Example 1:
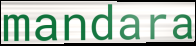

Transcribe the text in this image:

mandara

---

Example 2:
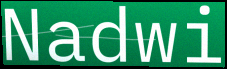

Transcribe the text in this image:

Nadwi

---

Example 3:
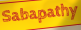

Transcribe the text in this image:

Sabapathy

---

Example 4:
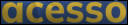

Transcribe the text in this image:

acesso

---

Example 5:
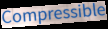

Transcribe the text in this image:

Compressible